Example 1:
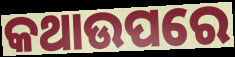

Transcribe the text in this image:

କଥାଉପରେ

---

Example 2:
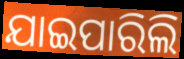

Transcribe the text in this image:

ଯାଇପାରିଲି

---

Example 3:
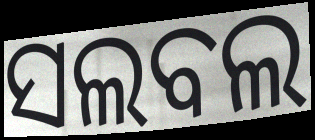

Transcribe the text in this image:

ସଲବଲ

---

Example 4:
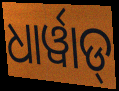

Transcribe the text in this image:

ଧାର୍ୱାଡ୍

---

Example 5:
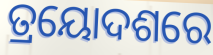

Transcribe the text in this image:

ତ୍ରୟୋଦଶରେ